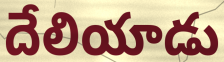
దేలియాడు